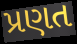
પ્રણત